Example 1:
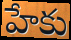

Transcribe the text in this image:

హేకు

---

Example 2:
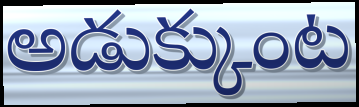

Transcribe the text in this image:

అడుక్కుంట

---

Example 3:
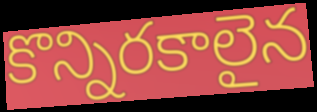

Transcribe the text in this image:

కొన్నిరకాలైన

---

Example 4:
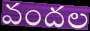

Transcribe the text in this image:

వందల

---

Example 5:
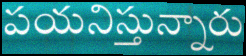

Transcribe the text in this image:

పయనిస్తున్నారు